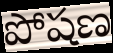
పోషణ